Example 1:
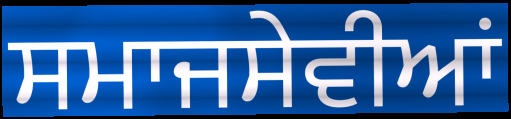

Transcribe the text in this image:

ਸਮਾਜਸੇਵੀਆਂ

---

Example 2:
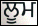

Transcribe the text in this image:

ਲੂਮ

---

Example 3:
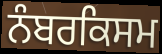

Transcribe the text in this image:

ਨੰਬਰਕਿਸਮ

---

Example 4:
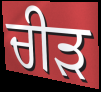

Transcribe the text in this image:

ਚੀੜ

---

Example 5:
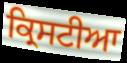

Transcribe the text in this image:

ਕ੍ਰਿਸਟੀਆ